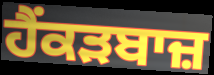
ਹੈਂਕੜਬਾਜ਼